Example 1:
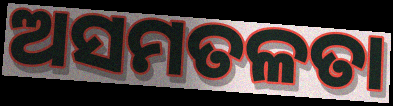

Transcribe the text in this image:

ଅସମତଳତା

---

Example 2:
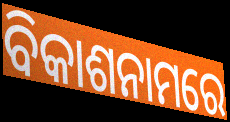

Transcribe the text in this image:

ବିକାଶନାମରେ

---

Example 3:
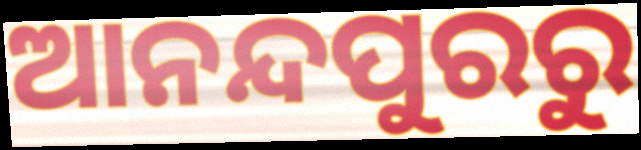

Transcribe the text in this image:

ଆନନ୍ଦପୁରରୁ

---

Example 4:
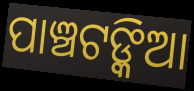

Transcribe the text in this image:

ପାଞ୍ଚଟଙ୍କିଆ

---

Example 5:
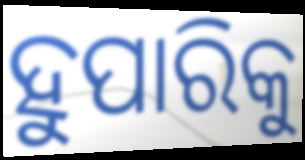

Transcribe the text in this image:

ହୁପାରିକୁ